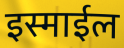
इस्माईल